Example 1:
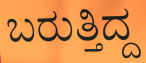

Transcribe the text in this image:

ಬರುತ್ತಿದ್ದ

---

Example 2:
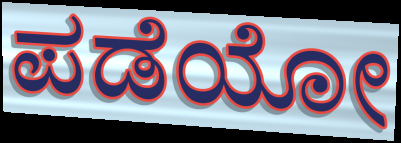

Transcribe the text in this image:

ಪಡೆಯೋ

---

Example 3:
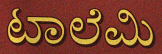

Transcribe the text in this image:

ಟಾಲೆಮಿ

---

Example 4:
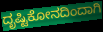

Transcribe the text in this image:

ದೃಷ್ಟಿಕೋನದಿಂದಾಗಿ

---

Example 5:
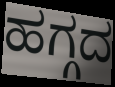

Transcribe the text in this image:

ಹಗ್ಗದ